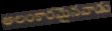
అలంకారమైనవాడు